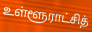
உள்ளூராட்சித்